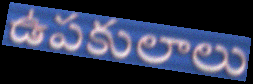
ఉపకులాలు